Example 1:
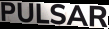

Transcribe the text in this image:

PULSAR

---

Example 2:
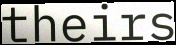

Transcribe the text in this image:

theirs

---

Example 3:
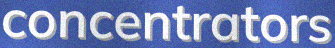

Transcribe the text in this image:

concentrators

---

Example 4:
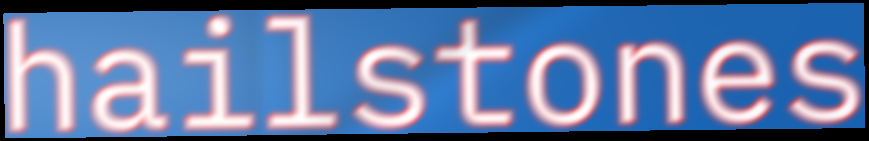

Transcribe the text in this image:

hailstones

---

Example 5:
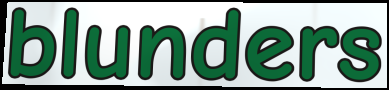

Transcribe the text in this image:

blunders